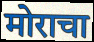
मोराचा